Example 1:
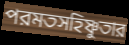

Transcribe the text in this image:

পরমতসহিষ্ণুতার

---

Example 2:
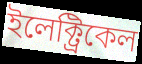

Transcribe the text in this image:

ইলেক্ট্রিকেল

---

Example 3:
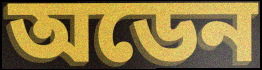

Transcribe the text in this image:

অডেন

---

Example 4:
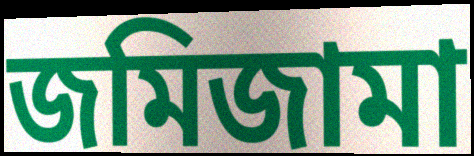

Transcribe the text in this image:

জমিজামা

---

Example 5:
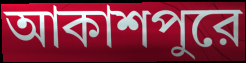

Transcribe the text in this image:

আকাশপুরে